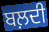
ਬਲ਼ਦੀ